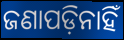
ଜଣାପଡ଼ିନାହିଁ